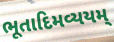
ભૂતાદિમવ્યયમ્